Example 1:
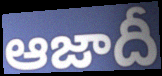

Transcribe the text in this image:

ఆజాదీ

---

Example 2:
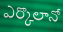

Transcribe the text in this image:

ఎర్కొలానో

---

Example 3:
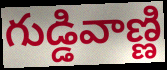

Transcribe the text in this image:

గుడ్డివాణ్ణి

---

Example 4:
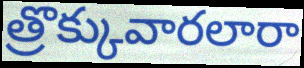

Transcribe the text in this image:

త్రొక్కువారలారా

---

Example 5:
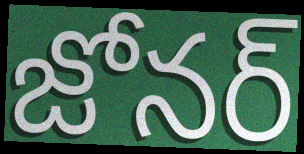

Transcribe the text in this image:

జోనర్